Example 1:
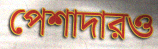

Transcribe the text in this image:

পেশাদারও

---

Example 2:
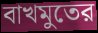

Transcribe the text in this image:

বাখমুতের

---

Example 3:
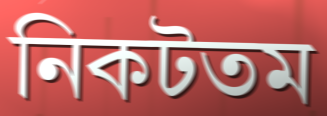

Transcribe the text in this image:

নিকটতম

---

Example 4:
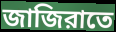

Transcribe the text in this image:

জাজিরাতে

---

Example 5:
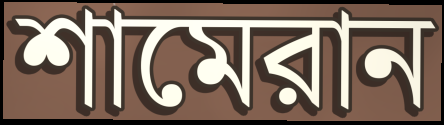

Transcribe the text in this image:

শামেরান